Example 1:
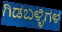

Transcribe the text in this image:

ಗಿಡಬಳ್ಳಿಗಳ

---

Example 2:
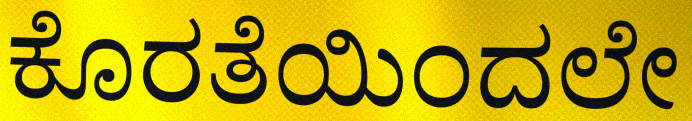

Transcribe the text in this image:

ಕೊರತೆಯಿಂದಲೇ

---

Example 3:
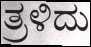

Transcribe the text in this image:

ತ್ರಳಿದು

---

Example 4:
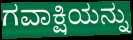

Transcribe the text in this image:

ಗವಾಕ್ಷಿಯನ್ನು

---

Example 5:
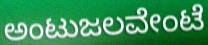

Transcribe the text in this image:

ಅಂಟುಜಲವೇಂಟೆ